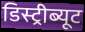
डिस्ट्रीब्यूट